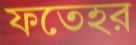
ফতেহর